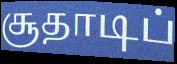
சூதாடிப்